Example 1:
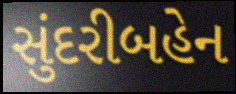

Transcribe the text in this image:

સુંદરીબહેન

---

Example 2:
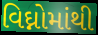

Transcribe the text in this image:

વિઘ્નોમાંથી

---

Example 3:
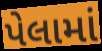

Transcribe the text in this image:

પેલામાં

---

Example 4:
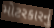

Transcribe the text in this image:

મોટરકારનું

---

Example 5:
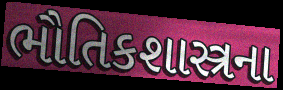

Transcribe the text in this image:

ભૌતિકશાસ્ત્રના